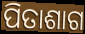
ପିତାଶାଗ